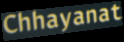
Chhayanat